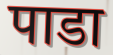
पाडा